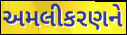
અમલીકરણને